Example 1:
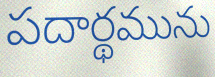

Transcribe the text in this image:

పదార్థమును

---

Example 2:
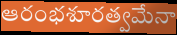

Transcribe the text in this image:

ఆరంభశూరత్వమేనా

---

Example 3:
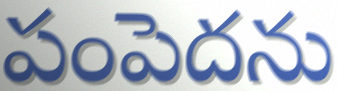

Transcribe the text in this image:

పంపెదను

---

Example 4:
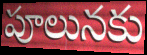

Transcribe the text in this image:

పూలునకు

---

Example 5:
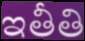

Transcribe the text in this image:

ఇతీతి